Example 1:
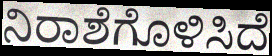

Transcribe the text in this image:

ನಿರಾಶೆಗೊಳಿಸಿದೆ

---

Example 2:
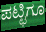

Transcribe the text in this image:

ಪಟ್ಟಿಗೂ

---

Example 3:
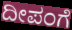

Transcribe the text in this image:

ದೀಪಂಗೆ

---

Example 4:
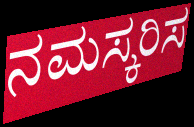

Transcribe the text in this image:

ನಮಸ್ಕರಿಸ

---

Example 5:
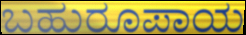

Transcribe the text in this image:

ಬಹುರೂಪಾಯ